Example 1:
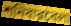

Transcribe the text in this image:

শনিবারবেলা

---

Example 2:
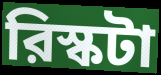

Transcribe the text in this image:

রিস্কটা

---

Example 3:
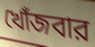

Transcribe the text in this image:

খোঁজবার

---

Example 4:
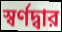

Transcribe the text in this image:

স্বর্ণদ্বার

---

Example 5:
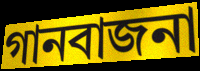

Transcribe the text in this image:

গানবাজনা